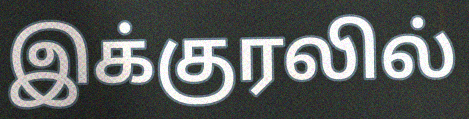
இக்குரலில்